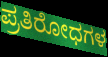
ಪ್ರತಿರೋಧಗಳ